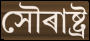
সৌৰাষ্ট্ৰ